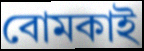
বোমকাই